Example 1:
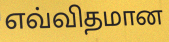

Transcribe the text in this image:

எவ்விதமான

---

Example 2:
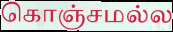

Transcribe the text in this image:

கொஞ்சமல்ல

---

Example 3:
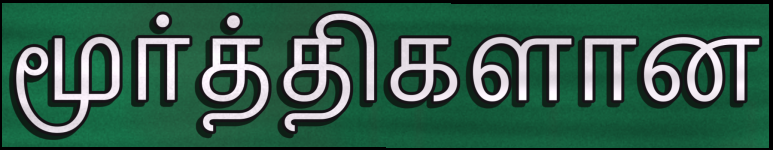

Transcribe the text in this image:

மூர்த்திகளான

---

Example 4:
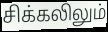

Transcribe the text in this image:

சிக்கலிலும்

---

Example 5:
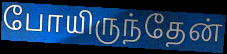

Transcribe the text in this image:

போயிருந்தேன்